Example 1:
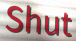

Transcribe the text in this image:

Shut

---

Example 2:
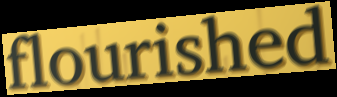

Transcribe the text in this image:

flourished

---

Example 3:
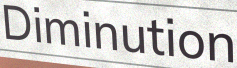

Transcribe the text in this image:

Diminution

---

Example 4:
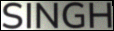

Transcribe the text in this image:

SINGH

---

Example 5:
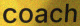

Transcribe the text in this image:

coach